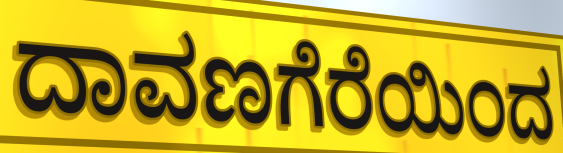
ದಾವಣಗೆರೆಯಿಂದ